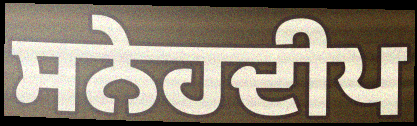
ਸਨੇਹਦੀਪ